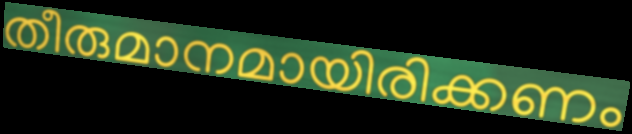
തീരുമാനമായിരിക്കണം